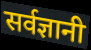
सर्वज्ञानी